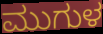
ಮುಗುಳ